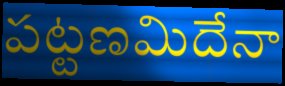
పట్టణమిదేనా